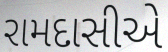
રામદાસીએ